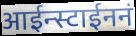
आईन्स्टाईननं